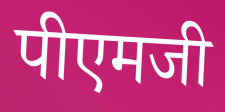
पीएमजी